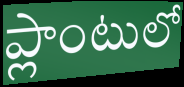
ప్లాంటులో